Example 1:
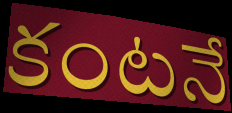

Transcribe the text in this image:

కంటనే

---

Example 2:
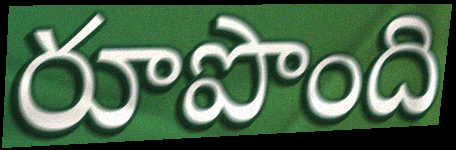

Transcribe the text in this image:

రూపొంది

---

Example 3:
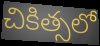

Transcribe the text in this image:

చికిత్సలో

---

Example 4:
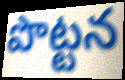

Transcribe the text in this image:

పొట్టన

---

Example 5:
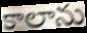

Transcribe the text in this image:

కాలాను